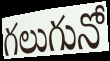
గలుగునో